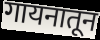
गायनातून